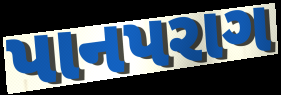
પાનપરાગ